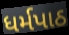
ધર્મપાઠ